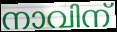
നാവിന്